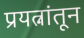
प्रयत्नांतून